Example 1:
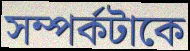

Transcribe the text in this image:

সম্পর্কটাকে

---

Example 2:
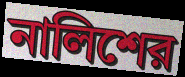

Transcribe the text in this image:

নালিশের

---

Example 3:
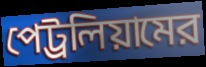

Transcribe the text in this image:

পেট্রলিয়ামের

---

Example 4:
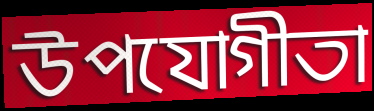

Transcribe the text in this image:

উপযোগীতা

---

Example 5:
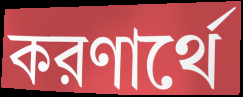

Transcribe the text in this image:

করণার্থে